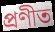
প্ৰণীত